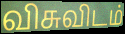
விசுவிடம்